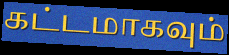
கட்டமாகவும்